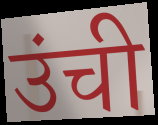
उंची